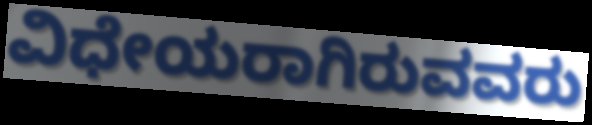
ವಿಧೇಯರಾಗಿರುವವರು